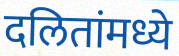
दलितांमध्ये